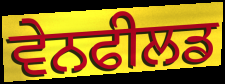
ਵੇਨਫੀਲਡ